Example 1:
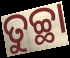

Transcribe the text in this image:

ତୁଚ୍ଛା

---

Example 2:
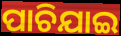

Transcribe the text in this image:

ପାଚିଯାଇ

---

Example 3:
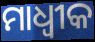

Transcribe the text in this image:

ମାଧ୍ୱୀକ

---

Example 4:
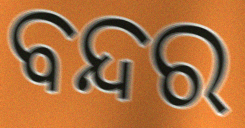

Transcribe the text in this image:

ବନ୍ଦର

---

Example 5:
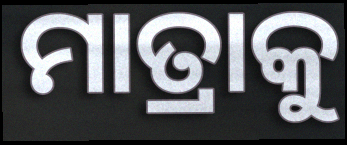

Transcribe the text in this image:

ମାତ୍ରାକୁ